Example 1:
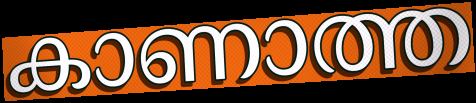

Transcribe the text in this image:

കാണാത്ത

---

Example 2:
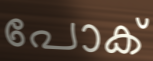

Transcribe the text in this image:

പോക്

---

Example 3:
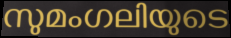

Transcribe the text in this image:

സുമംഗലിയുടെ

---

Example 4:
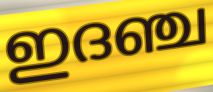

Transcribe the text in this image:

ഇദഞ്ച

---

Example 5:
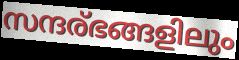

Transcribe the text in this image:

സന്ദര്ഭങ്ങളിലും